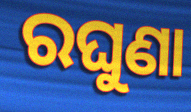
ରଘୁଣା